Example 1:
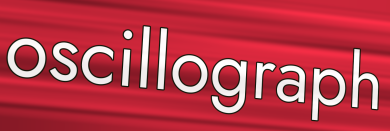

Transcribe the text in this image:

oscillograph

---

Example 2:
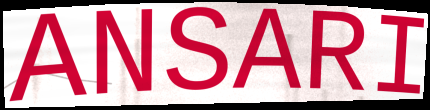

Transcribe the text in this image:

ANSARI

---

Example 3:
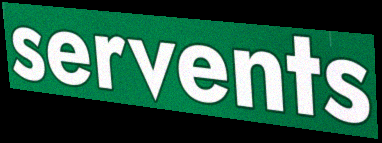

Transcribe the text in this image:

servents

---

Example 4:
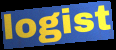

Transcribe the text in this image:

logist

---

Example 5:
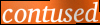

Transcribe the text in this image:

contused